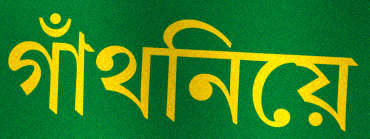
গাঁথনিয়ে